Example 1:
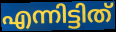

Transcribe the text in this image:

എന്നിട്ടിത്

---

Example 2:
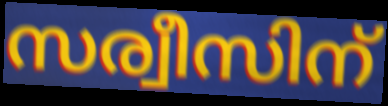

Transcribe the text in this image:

സര്വീസിന്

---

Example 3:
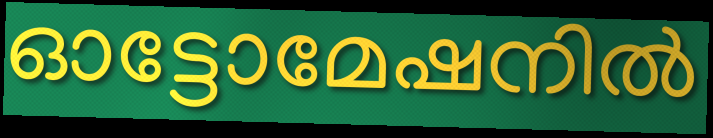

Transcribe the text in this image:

ഓട്ടോമേഷനിൽ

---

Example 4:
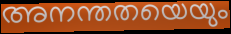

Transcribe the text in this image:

അനന്തതയെയും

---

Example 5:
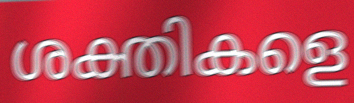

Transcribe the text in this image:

ശക്തികളെ